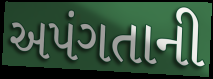
અપંગતાની